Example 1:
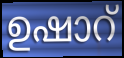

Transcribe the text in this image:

ഉഷാറ്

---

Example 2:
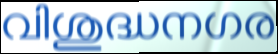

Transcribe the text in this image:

വിശുദ്ധനഗര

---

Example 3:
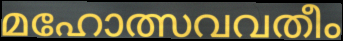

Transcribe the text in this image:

മഹോത്സവവതീം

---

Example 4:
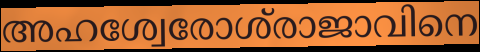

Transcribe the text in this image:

അഹശ്വേരോശ്‌രാജാവിനെ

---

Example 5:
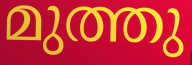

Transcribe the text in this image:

മുത്തു